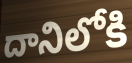
దానిలోకి